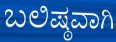
ಬಲಿಷ್ಠವಾಗಿ